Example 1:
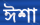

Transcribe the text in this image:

ঈশা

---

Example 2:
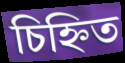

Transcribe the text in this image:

চিহ্নিত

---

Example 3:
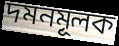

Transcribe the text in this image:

দমনমূলক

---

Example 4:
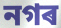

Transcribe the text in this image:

নগৰ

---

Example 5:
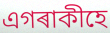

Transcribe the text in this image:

এগৰাকীহে